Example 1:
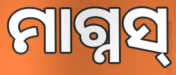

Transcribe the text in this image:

ମାଗ୍ନସ୍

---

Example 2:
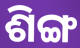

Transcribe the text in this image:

ଶିଙ୍ଗ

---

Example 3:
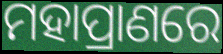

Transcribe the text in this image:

ମହାପ୍ରାଣରେ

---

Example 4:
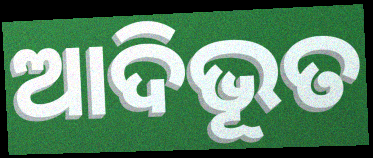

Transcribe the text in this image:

ଆଦିଭୂତ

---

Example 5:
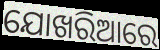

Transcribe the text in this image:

ଯୋଖରିଆରେ